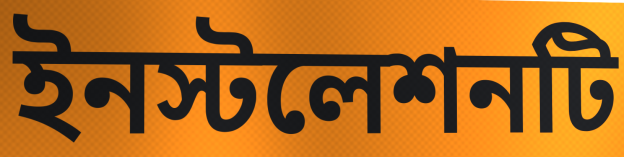
ইনস্টলেশনটি